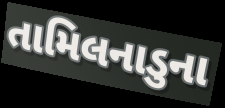
તામિલનાડુના